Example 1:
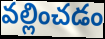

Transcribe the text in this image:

వల్లించడం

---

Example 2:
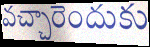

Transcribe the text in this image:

వచ్చారెందుకు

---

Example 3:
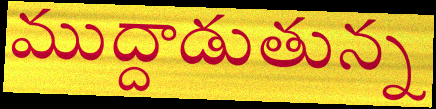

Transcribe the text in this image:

ముద్దాడుతున్న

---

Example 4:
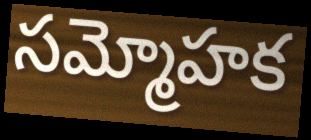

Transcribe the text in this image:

సమ్మోహక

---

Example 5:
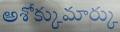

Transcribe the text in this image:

అశోక్కుమార్కు